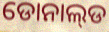
ଡୋନାଲ୍‌ଡ